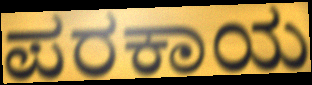
ಪರಕಾಯ